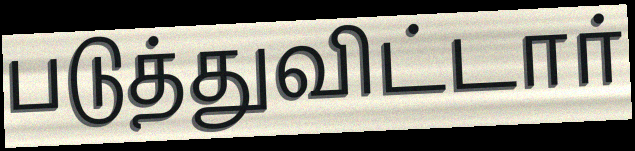
படுத்துவிட்டார்